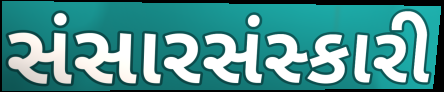
સંસારસંસ્કારી